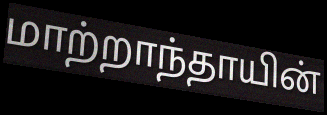
மாற்றாந்தாயின்